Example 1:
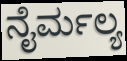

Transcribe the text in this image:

ನೈರ್ಮಲ್ಯ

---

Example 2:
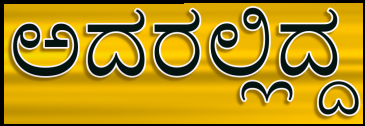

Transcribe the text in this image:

ಅದರಲ್ಲಿದ್ದ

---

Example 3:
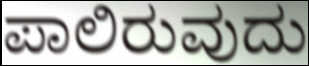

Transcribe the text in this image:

ಪಾಲಿರುವುದು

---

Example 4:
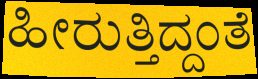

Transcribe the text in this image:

ಹೀರುತ್ತಿದ್ದಂತೆ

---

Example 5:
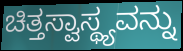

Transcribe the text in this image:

ಚಿತ್ತಸ್ವಾಸ್ಥ್ಯವನ್ನು